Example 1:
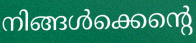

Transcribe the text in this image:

നിങ്ങൾക്കെന്റെ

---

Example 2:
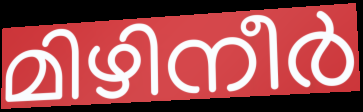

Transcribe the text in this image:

മിഴിനീർ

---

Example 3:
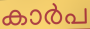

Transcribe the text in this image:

കാർപ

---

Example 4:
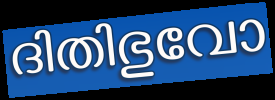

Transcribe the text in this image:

ദിതിഭുവോ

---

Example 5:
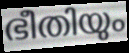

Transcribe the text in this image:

ഭീതിയും